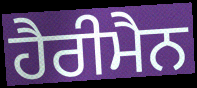
ਹੈਰੀਮੈਨ